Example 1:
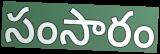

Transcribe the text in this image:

సంసారం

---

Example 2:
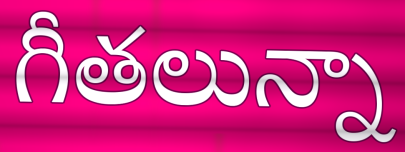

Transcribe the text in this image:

గీతలున్నా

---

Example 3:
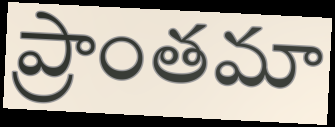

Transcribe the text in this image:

ప్రాంతమా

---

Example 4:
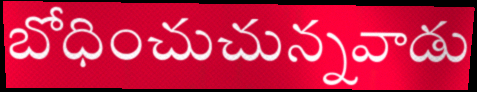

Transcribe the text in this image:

బోధించుచున్నవాడు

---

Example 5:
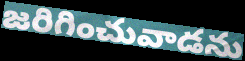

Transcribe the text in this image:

జరిగించువాడను